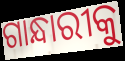
ଗାନ୍ଧାରୀକୁ